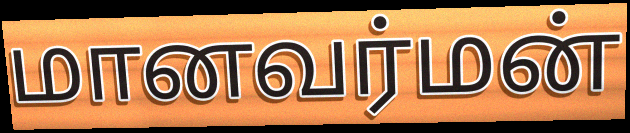
மானவர்மன்